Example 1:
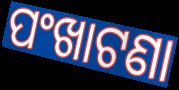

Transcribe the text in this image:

ପଂଖାଟଣା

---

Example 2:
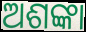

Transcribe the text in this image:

ଅଶଙ୍କା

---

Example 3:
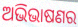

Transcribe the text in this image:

ଅଭିଭାଷଣର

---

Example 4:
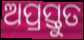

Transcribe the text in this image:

ଅପ୍ରସ୍ତୁତ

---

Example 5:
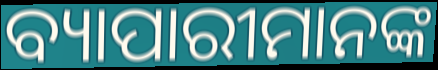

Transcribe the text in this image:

ବ୍ୟାପାରୀମାନଙ୍କ